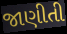
જાણીતી